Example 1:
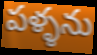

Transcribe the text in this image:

పళ్ళను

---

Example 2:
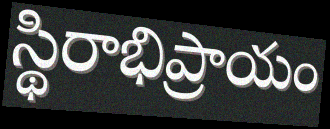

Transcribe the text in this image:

స్థిరాభిప్రాయం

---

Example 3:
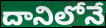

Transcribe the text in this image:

దానిలోనే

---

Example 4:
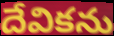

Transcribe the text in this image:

దేవికను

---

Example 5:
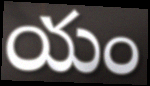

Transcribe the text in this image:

యం